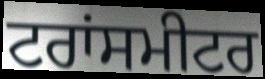
ਟਰਾਂਸਮੀਟਰ